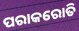
ପରାକରୋତି